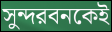
সুন্দরবনকেই